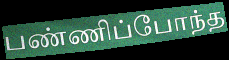
பண்ணிப்போந்த